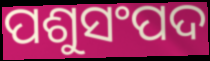
ପଶୁସଂପଦ